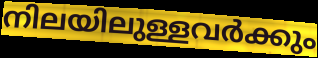
നിലയിലുള്ളവർക്കും